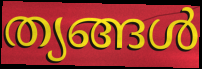
ത്യങ്ങൾ